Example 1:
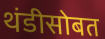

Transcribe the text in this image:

थंडीसोबत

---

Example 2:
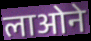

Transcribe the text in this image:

लाओने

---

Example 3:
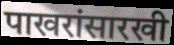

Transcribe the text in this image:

पाखरांसारखी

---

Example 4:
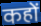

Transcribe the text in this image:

कहों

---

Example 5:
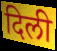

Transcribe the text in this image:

दिली